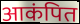
आकंपित